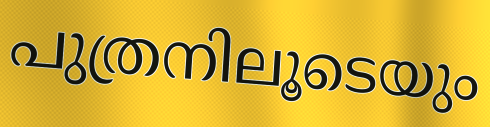
പുത്രനിലൂടെയും